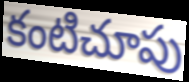
కంటిచూపు